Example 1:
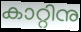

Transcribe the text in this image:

കാറ്റിനു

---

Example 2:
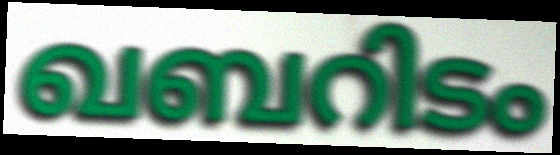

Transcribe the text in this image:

ഖബറിടം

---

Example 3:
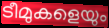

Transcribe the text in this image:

ടീമുകളെയും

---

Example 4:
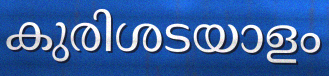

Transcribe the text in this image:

കുരിശടയാളം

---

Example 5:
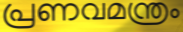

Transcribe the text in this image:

പ്രണവമന്ത്രം